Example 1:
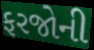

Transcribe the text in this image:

ફરજોની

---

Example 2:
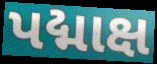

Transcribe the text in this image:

પદ્માક્ષ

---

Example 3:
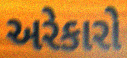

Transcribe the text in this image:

અરેકારો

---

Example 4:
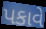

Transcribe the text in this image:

પકાવે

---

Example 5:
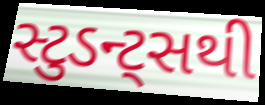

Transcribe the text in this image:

સ્ટુડન્ટ્સથી